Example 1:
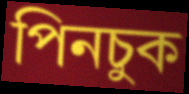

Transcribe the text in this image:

পিনচুক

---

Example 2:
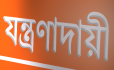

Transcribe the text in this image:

যন্ত্রণাদায়ী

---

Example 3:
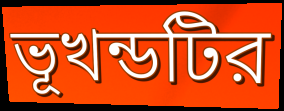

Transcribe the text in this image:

ভূখন্ডটির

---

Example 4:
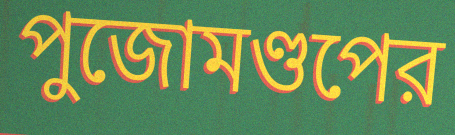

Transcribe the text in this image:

পুজোমণ্ডপের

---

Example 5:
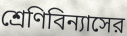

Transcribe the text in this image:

শ্রেণিবিন্যাসের